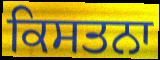
ਕਿਸਤਨਾ